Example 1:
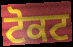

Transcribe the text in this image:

ਟੋਕਟ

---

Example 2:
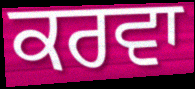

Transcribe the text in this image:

ਕਰਵਾ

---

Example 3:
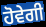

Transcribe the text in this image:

ਹੋਵੇਗੀ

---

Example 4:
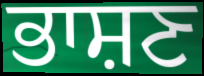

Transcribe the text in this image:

ਭਾਸ਼ਣ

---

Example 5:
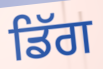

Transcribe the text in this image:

ਡਿੱਗ